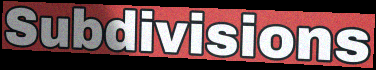
Subdivisions